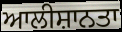
ਆਲੀਸ਼ਾਨਤਾ